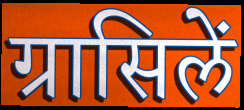
ग्रासिलें